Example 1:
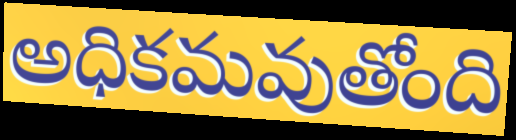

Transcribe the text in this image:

అధికమవుతోంది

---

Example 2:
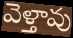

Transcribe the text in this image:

వెళ్తావు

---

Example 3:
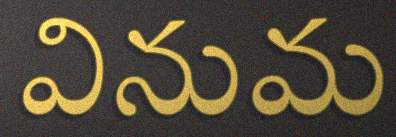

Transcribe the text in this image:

వినుమ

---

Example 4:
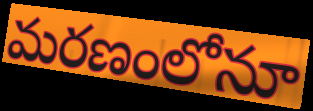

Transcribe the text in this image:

మరణంలోనూ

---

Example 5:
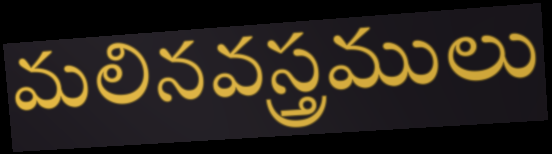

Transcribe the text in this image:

మలినవస్త్రములు